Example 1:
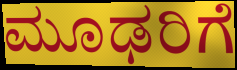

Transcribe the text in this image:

ಮೂಢರಿಗೆ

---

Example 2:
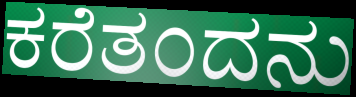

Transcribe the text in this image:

ಕರೆತಂದನು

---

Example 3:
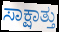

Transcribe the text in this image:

ಸಾಕ್ಷಾತ್ತು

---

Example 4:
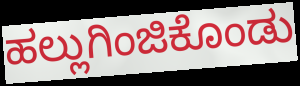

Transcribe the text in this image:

ಹಲ್ಲುಗಿಂಜಿಕೊಂಡು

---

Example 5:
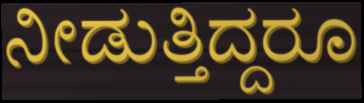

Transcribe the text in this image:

ನೀಡುತ್ತಿದ್ದರೂ